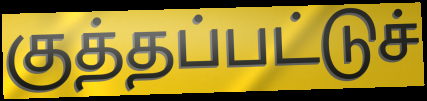
குத்தப்பட்டுச்